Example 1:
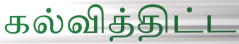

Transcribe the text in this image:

கல்வித்திட்ட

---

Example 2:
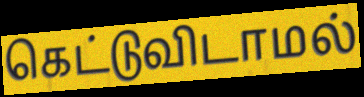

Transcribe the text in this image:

கெட்டுவிடாமல்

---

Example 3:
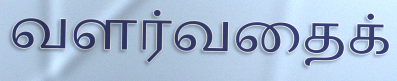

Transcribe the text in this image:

வளர்வதைக்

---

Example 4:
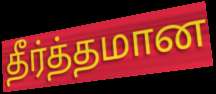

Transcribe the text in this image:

தீர்த்தமான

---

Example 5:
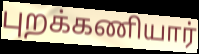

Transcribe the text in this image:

புறக்கணியார்